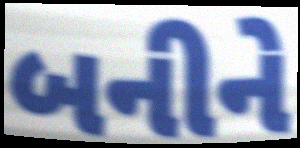
બનીને